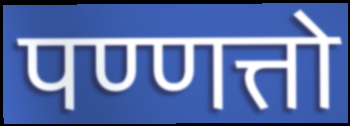
पण्णत्तो